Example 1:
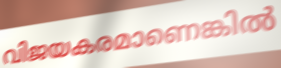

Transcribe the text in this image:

വിജയകരമാണെങ്കിൽ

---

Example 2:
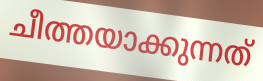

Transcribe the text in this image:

ചീത്തയാക്കുന്നത്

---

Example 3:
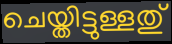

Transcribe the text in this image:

ചെയ്തിട്ടുള്ളതു്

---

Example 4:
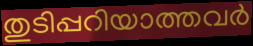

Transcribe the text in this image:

തുടിപ്പറിയാത്തവർ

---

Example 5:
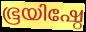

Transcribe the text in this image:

ഭൂയിഷ്ഠേ